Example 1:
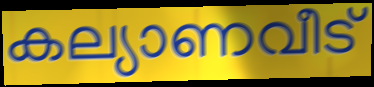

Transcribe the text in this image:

കല്യാണവീട്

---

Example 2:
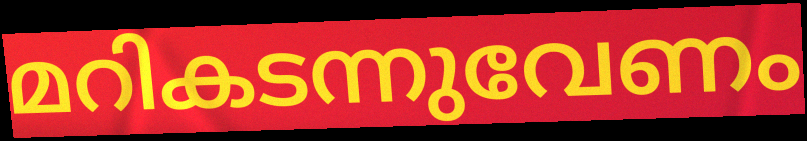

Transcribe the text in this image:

മറികടന്നുവേണം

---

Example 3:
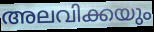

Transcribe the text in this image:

അലവിക്കയും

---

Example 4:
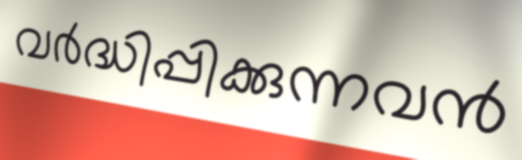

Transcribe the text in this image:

വർദ്ധിപ്പിക്കുന്നവൻ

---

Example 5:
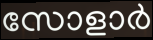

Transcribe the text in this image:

സോളാർ